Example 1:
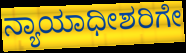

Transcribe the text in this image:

ನ್ಯಾಯಾಧೀಶರಿಗೇ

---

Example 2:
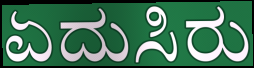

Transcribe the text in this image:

ಏದುಸಿರು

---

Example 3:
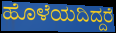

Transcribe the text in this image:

ಹೊಳೆಯದಿದ್ದರೆ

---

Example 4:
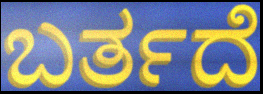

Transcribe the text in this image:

ಬರ್ತದೆ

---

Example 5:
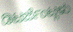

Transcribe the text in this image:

ಡಿಟರ್ಜೆಂಟ್ಗಳು